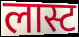
लास्ट